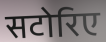
सटोरिए